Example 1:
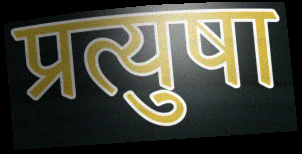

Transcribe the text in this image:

प्रत्युषा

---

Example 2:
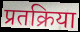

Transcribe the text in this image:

प्रतक्रिया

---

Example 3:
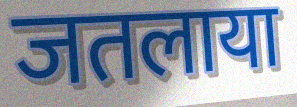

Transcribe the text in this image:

जतलाया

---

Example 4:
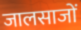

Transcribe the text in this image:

जालसाजों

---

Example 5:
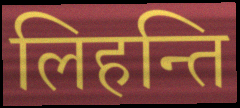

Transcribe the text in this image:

लिहन्ति